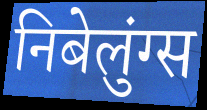
निबेलुंग्स